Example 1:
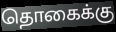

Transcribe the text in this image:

தொகைக்கு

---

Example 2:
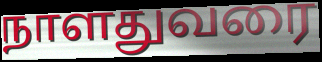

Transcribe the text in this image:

நாளதுவரை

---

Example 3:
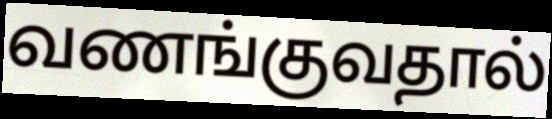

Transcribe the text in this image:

வணங்குவதால்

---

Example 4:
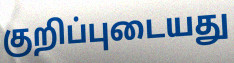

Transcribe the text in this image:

குறிப்புடையது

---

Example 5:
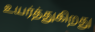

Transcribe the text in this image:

உயர்த்துகிறது